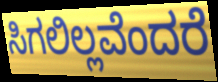
ಸಿಗಲಿಲ್ಲವೆಂದರೆ